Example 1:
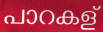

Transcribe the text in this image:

പാറകള്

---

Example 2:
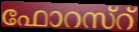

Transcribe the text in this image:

ഫോറസ്റ്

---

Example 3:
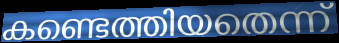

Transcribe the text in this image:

കണ്ടെത്തിയതെന്ന്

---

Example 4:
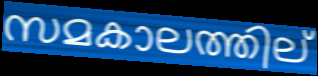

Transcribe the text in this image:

സമകാലത്തില്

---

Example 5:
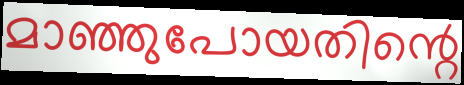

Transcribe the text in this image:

മാഞ്ഞുപോയതിന്റെ